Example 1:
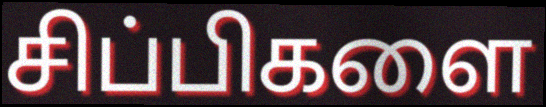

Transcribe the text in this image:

சிப்பிகளை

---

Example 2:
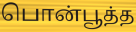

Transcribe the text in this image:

பொன்பூத்த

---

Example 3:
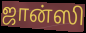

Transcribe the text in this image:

ஜான்ஸி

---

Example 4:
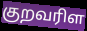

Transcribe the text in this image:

குறவரிள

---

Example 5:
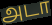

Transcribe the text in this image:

அடா